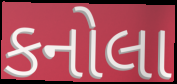
કનોલા